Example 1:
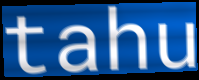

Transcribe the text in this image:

tahu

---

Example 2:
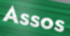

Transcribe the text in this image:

Assos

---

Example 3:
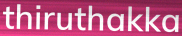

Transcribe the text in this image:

thiruthakka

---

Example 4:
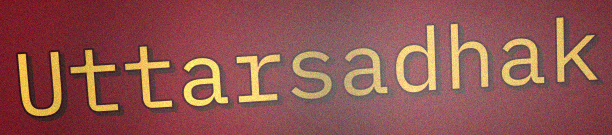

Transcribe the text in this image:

Uttarsadhak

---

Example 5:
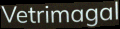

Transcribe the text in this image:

Vetrimagal